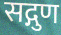
सद्गुण